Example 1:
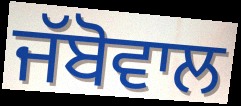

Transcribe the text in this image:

ਜੱਬੋਵਾਲ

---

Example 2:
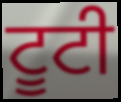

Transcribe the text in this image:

ਟੂਟੀ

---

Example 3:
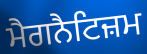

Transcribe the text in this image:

ਮੈਗਨੈਟਿਜ਼ਮ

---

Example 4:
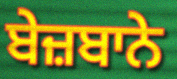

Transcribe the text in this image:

ਬੇਜ਼ਬਾਨੇ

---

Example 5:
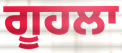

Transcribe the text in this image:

ਗੂਹਲਾ